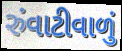
રુંવાટીવાળું